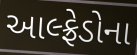
આલ્ફ્રેડોના